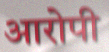
आरोपी